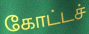
கோட்டச்